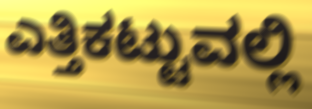
ಎತ್ತಿಕಟ್ಟುವಲ್ಲಿ